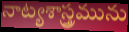
నాట్యశాస్త్రమును